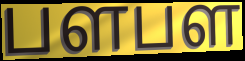
பளபள